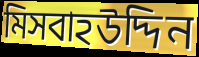
মিসবাহউদ্দিন